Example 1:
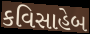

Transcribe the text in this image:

કવિસાહેબ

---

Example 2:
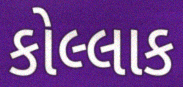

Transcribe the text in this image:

કોલ્લાક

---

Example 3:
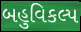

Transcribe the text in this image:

બહુવિકલ્પ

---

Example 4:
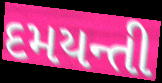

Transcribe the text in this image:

દમયન્તી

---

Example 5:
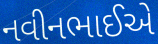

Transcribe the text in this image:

નવીનભાઈએ